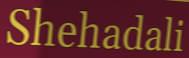
Shehadali